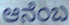
ಆನೆಂಬ